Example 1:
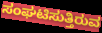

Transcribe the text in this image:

ಸಂಘಟಿಸುತ್ತಿರುವ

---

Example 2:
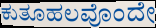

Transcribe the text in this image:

ಕುತೂಹಲವೊಂದೇ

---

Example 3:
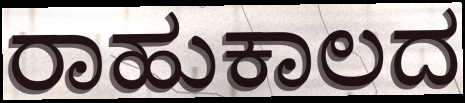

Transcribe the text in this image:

ರಾಹುಕಾಲದ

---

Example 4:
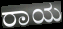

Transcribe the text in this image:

ರಾಯ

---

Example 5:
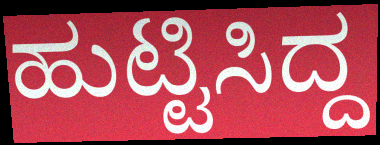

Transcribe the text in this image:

ಹುಟ್ಟಿಸಿದ್ದ